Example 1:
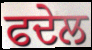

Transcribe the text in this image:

ਫਦੇਲ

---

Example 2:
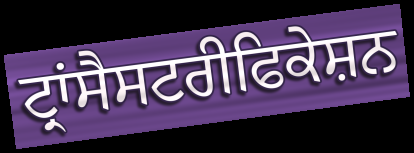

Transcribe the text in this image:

ਟ੍ਰਾਂਸੈਸਟਰੀਫਿਕੇਸ਼ਨ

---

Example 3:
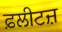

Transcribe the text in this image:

ਫ਼ਲੀਟਜ਼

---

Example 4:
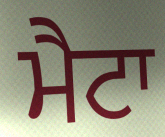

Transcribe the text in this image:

ਮੈਟਾ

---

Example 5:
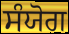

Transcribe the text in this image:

ਸੰਯੋਗ